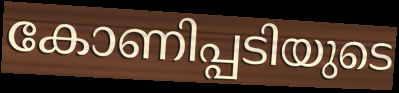
കോണിപ്പടിയുടെ